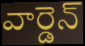
వార్డెన్